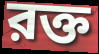
রক্ত